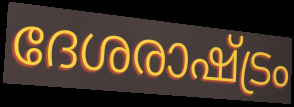
ദേശരാഷ്ട്രം